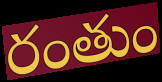
రంతుం